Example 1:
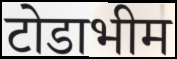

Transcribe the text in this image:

टोडाभीम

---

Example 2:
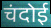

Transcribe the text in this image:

चंदोई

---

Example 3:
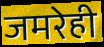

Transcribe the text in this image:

जमरेही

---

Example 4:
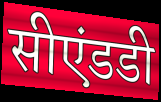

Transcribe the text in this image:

सीएंडडी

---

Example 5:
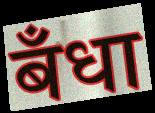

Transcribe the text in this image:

बँधा